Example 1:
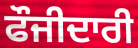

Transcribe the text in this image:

ਫੌਜੀਦਾਰੀ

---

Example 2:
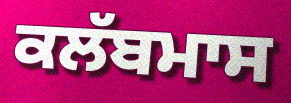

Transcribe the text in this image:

ਕਲੱਬਮਾਸ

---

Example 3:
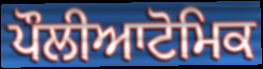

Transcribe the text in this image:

ਪੌਲੀਆਟੋਮਿਕ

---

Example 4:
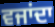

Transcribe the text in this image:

ਵਜਾਂਦਾ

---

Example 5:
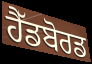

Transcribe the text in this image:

ਹੈੱਡਬੋਰਡ